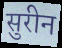
सुरीन